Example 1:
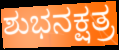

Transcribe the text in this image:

ಶುಭನಕ್ಷತ್ರ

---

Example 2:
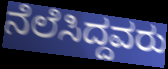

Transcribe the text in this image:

ನೆಲೆಸಿದ್ದವರು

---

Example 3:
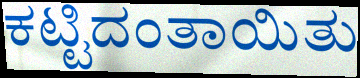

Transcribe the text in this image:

ಕಟ್ಟಿದಂತಾಯಿತು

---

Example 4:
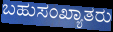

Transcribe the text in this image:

ಬಹುಸಂಖ್ಯಾತರು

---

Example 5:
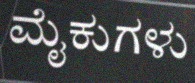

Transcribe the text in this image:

ಮೈಕುಗಳು